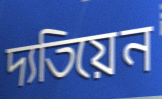
দ্যতিয়েন